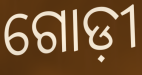
ଗୋଡ଼ୀ